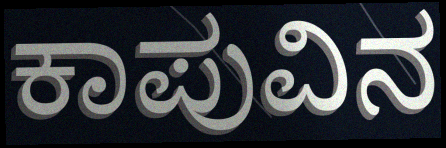
ಕಾಪುವಿನ